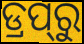
ଡ୍ରପ୍‍ରୁ